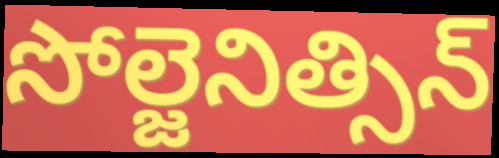
సోల్జెనిత్సిన్